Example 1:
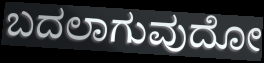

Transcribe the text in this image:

ಬದಲಾಗುವುದೋ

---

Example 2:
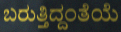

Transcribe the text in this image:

ಬರುತ್ತಿದ್ದಂತೆಯೆ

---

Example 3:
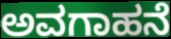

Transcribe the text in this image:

ಅವಗಾಹನೆ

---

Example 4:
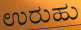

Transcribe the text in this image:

ಉರುಹು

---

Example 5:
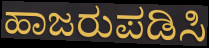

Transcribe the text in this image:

ಹಾಜರುಪಡಿಸಿ